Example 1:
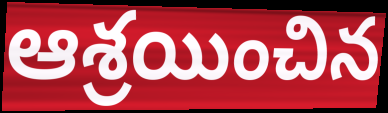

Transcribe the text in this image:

ఆశ్రయించిన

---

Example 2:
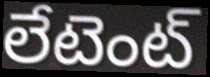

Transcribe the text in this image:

లేటెంట్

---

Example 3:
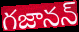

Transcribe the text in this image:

గజానన్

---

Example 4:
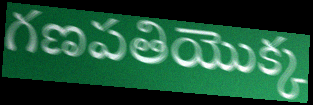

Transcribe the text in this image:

గణపతియొక్క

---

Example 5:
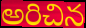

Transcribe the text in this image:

అరిచిన